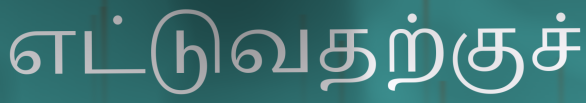
எட்டுவதற்குச்